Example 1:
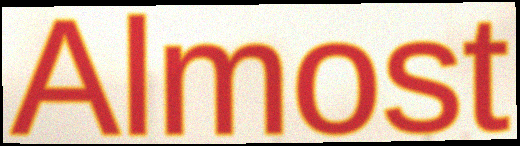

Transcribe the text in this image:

Almost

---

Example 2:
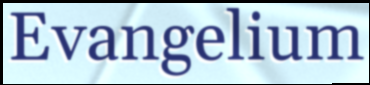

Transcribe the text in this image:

Evangelium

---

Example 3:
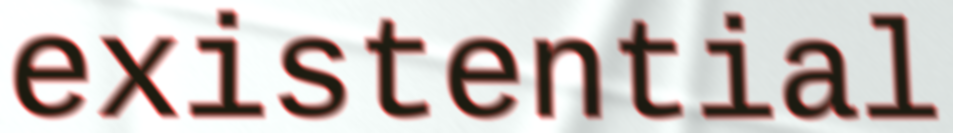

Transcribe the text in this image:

existential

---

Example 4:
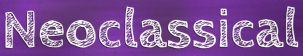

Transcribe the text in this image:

Neoclassical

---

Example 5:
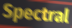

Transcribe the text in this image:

Spectral